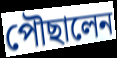
পৌছালেন